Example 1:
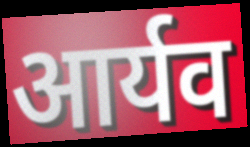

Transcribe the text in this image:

आर्यव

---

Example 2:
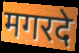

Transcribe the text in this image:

मगरदे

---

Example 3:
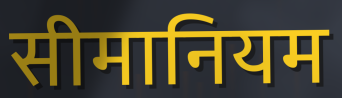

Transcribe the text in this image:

सीमानियम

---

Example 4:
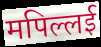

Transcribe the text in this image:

मपिल्लई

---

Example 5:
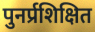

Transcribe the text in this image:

पुनर्प्रशिक्षित